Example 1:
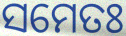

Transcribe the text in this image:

ସମେତଃ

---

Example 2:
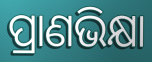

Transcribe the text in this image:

ପ୍ରାଣଭିକ୍ଷା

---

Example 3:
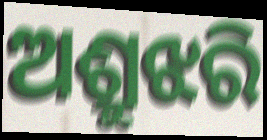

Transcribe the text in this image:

ଅଶ୍ରୁଝରି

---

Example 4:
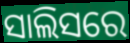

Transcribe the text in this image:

ସାଲିସରେ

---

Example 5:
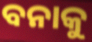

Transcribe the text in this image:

ବନାକୁ